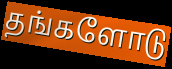
தங்களோடு